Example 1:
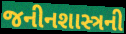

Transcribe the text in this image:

જનીનશાસ્ત્રની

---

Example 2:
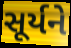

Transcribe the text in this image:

સૂર્યને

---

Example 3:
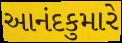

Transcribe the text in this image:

આનંદકુમારે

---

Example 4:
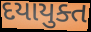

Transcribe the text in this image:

દયાયુક્ત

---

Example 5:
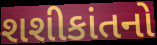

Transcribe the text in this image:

શશીકાંતનો